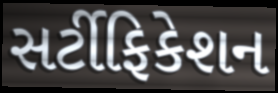
સર્ટીફિકેશન